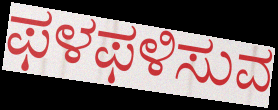
ಫಳಫಳಿಸುವ